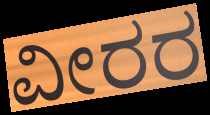
ವೀರರ